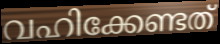
വഹിക്കേണ്ടത്